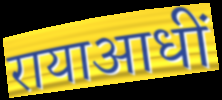
रायाआधीं